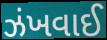
ઝંખવાઈ